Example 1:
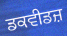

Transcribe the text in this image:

ਡਕਵੀਡਜ਼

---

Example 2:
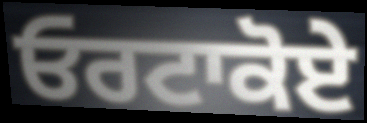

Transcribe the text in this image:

ਓਰਟਾਕੋਏ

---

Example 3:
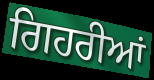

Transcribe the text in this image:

ਗਿਹਰੀਆਂ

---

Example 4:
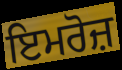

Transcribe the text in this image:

ਇਮਰੋਜ਼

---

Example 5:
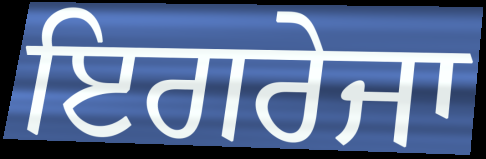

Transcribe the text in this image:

ਇਗਰੇਜਾ